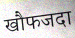
खौफजदा